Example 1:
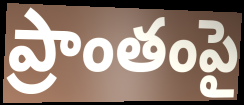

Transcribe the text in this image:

ప్రాంతంపై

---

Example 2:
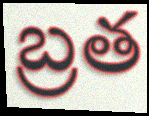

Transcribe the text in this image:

బ్రత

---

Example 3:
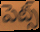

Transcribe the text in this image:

పెట్స్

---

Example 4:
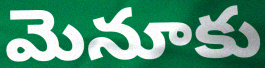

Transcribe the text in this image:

మెనూకు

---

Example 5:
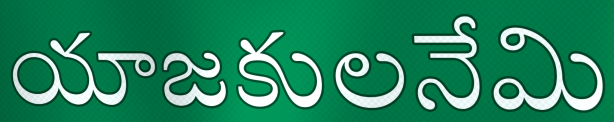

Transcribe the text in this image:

యాజకులనేమి